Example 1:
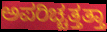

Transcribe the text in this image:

ಅಪರಿಚ್ಚತ್ತತ್ತಾ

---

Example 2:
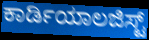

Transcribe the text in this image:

ಕಾರ್ಡಿಯಾಲಜಿಸ್ಟ್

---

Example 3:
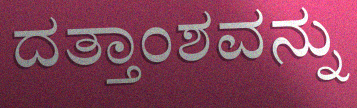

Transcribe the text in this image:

ದತ್ತಾಂಶವನ್ನು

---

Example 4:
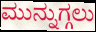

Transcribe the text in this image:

ಮುನ್ನುಗ್ಗಲು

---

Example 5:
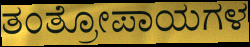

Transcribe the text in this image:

ತಂತ್ರೋಪಾಯಗಳ